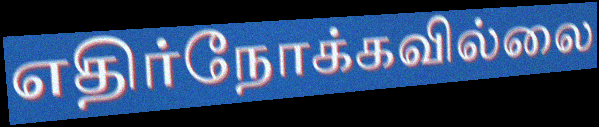
எதிர்நோக்கவில்லை